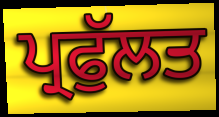
ਪ੍ਰਫੁੱਲਤ